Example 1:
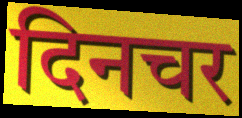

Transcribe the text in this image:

दिनचर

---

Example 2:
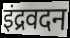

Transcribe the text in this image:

इंद्रवदन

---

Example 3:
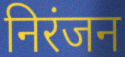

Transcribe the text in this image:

निरंजन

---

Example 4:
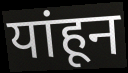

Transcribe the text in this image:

यांहून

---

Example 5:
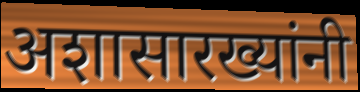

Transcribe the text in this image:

अशासारख्यांनी